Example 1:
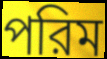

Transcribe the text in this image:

পরিম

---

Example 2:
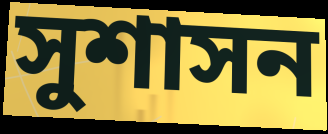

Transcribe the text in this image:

সুশাসন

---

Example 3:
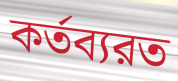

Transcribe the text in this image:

কর্তব্যরত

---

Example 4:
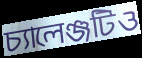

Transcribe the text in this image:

চ্যালেঞ্জটিও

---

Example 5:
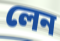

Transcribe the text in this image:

লেন